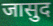
जासुद